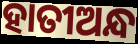
ହାତୀଅନ୍ଧ